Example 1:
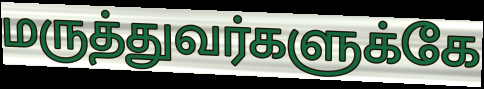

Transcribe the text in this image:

மருத்துவர்களுக்கே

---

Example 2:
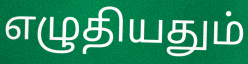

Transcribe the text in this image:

எழுதியதும்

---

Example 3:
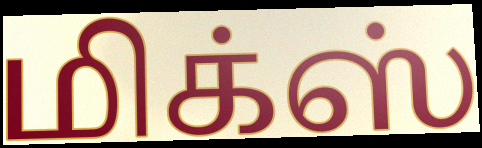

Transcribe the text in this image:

மிக்ஸ்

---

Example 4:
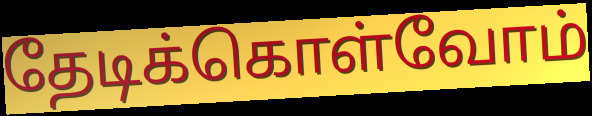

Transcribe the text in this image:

தேடிக்கொள்வோம்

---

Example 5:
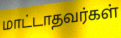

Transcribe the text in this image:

மாட்டாதவர்கள்